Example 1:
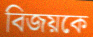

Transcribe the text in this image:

বিজয়কে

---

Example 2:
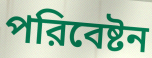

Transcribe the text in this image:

পরিবেষ্টন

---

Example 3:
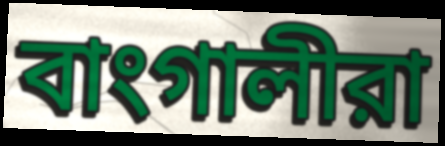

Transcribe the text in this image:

বাংগালীরা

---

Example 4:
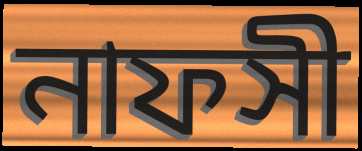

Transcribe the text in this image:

নাফসী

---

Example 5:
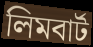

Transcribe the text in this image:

লিমবার্ট